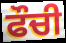
ਫੌਚੀ